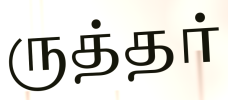
ருத்தர்